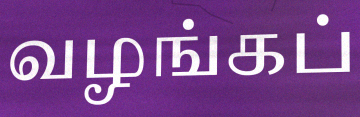
வழங்கப்